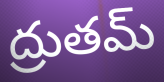
ద్రుతమ్